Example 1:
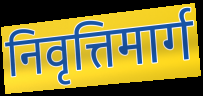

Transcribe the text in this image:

निवृत्तिमार्ग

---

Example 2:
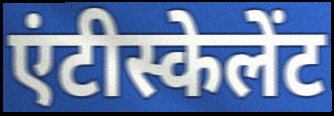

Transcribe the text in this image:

एंटीस्केलेंट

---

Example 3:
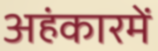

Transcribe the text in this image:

अहंकारमें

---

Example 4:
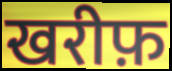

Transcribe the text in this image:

खरीफ़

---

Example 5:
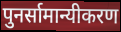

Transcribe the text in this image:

पुनर्सामान्यीकरण